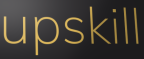
upskill